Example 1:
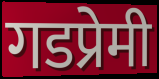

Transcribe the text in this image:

गडप्रेमी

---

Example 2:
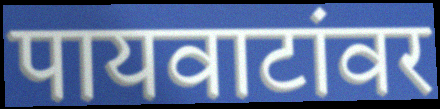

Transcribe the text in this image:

पायवाटांवर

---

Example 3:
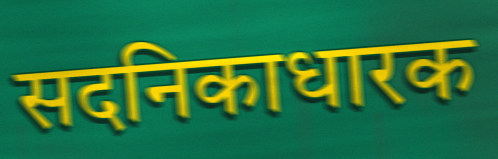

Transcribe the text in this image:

सदनिकाधारक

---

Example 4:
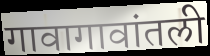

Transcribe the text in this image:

गावागावांतली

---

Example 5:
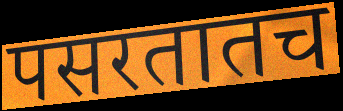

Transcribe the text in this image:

पसरतातच